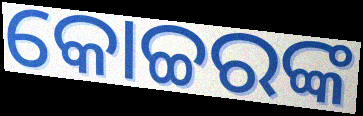
କୋଚ୍ଚରଙ୍କ